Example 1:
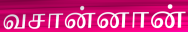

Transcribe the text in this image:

வசான்னான்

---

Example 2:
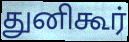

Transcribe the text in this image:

துனிகூர்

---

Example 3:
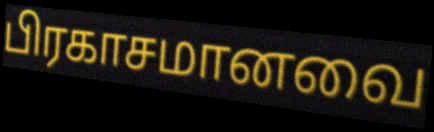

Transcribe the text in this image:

பிரகாசமானவை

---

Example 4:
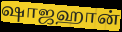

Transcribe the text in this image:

ஷாஜஹான்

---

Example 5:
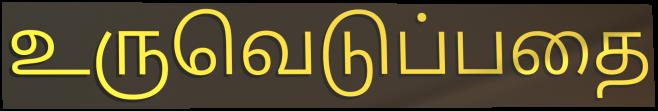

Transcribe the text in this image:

உருவெடுப்பதை